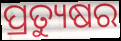
ପ୍ରତ୍ୟୁଷର